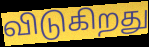
விடுகிறது